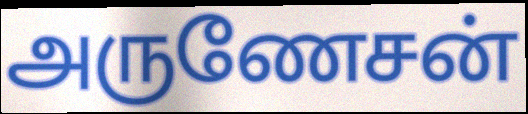
அருணேசன்